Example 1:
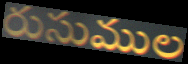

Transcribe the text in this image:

రుసుముల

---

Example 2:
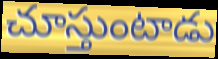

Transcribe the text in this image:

చూస్తుంటాడు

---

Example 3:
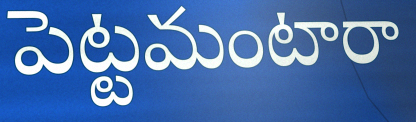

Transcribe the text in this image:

పెట్టమంటారా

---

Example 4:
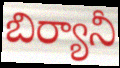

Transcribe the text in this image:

బిర్యానీ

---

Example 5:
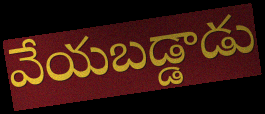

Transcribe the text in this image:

వేయబడ్డాడు